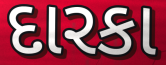
દારકા